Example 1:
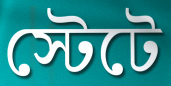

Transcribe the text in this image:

স্টেটে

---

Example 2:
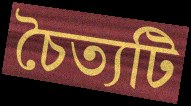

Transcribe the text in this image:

চৈত্যটি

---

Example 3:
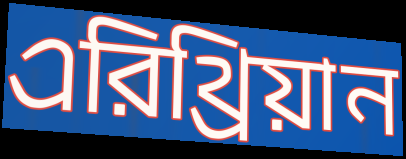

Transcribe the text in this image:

এরিথ্রিয়ান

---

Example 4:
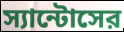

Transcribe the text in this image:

স্যান্টোসের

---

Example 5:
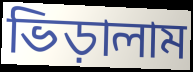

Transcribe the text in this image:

ভিড়ালাম